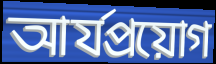
আর্যপ্রয়োগ